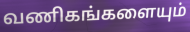
வணிகங்களையும்